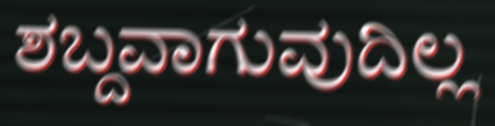
ಶಬ್ದವಾಗುವುದಿಲ್ಲ